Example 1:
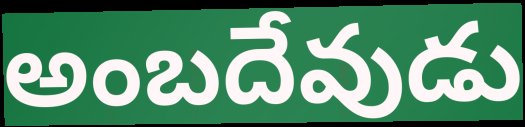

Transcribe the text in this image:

అంబదేవుడు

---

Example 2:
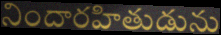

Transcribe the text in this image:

నిందారహితుడును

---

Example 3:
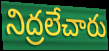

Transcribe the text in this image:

నిద్రలేచారు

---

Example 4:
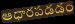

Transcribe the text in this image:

ఆధారపడడం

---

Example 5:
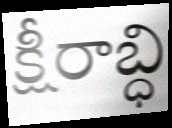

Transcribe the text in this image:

క్షీరాబ్ధి